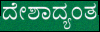
ದೇಶಾದ್ಯಂತ